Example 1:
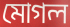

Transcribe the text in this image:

মোগল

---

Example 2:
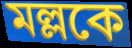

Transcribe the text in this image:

মল্লকে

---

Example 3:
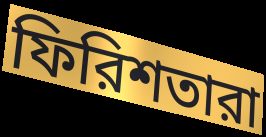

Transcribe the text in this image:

ফিরিশতারা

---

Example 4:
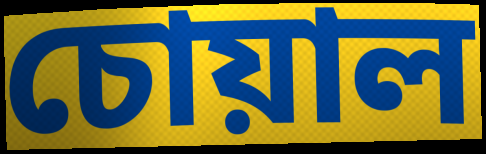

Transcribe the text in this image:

চোয়াল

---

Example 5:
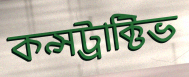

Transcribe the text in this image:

কন্সট্রাক্টিভ